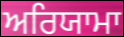
ਅਰਿਯਾਮਾ